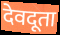
देवदूता